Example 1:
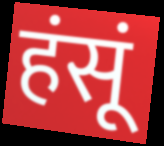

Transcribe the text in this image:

हंसूं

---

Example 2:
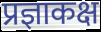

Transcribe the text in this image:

प्रज्ञाकक्ष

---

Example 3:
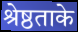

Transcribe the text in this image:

श्रेष्ठताके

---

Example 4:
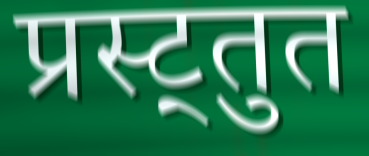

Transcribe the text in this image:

प्रस्ट्तुत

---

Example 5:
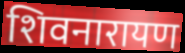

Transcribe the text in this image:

शिवनारायण